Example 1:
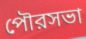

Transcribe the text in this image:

পৌরসভা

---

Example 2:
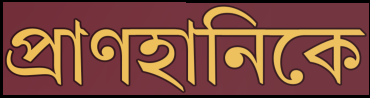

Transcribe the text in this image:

প্রাণহানিকে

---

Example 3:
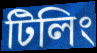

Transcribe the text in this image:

টিলিং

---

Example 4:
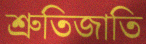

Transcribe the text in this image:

শ্রুতিজাতি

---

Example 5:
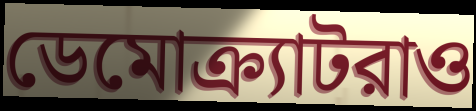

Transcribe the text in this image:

ডেমোক্র্যাটরাও